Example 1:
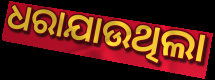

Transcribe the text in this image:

ଧରାଯାଉଥିଲା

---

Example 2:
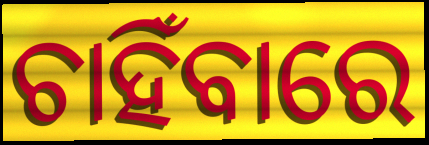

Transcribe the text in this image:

ଚାହିଁବାରେ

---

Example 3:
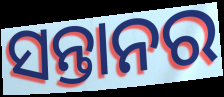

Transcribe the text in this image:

ସନ୍ତାନର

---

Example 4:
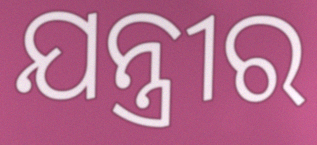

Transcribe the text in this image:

ଯନ୍ତ୍ରୀର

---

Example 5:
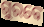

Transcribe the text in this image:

ଗୁରବେ